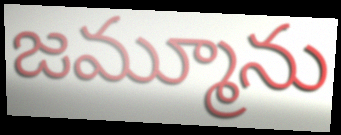
జమ్మూను